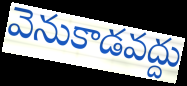
వెనుకాడవద్దు